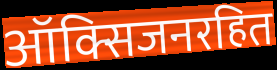
ऑक्सिजनरहित